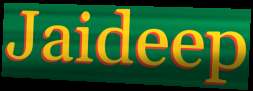
Jaideep